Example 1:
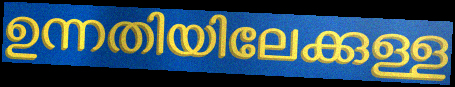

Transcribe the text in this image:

ഉന്നതിയിലേക്കുള്ള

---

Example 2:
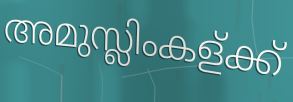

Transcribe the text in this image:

അമുസ്ലിംകള്ക്ക്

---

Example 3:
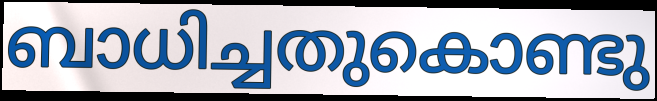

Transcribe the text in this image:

ബാധിച്ചതുകൊണ്ടു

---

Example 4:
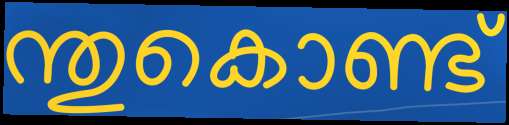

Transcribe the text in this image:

ന്തുകൊണ്ട്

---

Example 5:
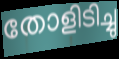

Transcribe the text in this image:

തോളിടിച്ചു